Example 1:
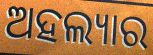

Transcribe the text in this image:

ଅହଲ୍ୟାର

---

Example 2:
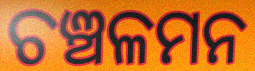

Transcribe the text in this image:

ଚଞ୍ଚଳମନ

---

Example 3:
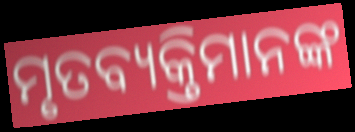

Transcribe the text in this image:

ମୃତବ୍ୟକ୍ତିମାନଙ୍କ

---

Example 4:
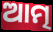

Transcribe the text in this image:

ଆତ୍ମ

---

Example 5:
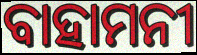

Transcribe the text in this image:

ବାହାମନୀ